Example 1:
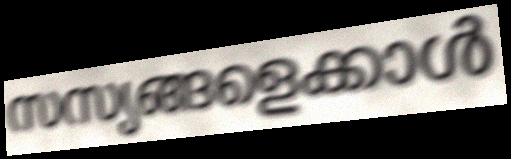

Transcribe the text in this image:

സസ്യങ്ങളെക്കാൾ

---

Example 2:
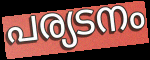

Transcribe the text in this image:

പര്യടനം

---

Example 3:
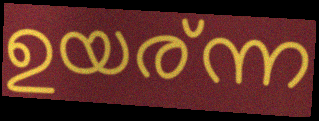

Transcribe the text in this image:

ഉയര്ന്ന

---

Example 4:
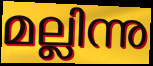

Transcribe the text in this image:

മല്ലിന്നു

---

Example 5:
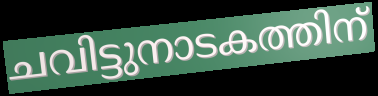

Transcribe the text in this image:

ചവിട്ടുനാടകത്തിന്